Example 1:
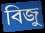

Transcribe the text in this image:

বিজু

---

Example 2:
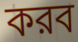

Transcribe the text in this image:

করব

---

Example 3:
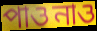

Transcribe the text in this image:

পাওনাও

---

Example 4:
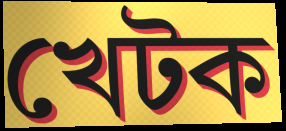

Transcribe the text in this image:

খেটক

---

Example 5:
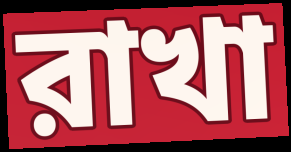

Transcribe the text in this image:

রাখা